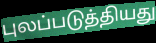
புலப்படுத்தியது